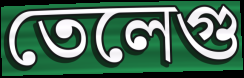
তেলেগু